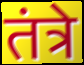
तंत्रे